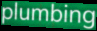
plumbing